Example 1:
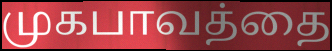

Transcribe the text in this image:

முகபாவத்தை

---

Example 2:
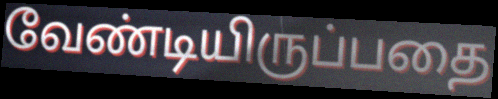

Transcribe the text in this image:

வேண்டியிருப்பதை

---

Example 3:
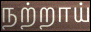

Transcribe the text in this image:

நற்றாய்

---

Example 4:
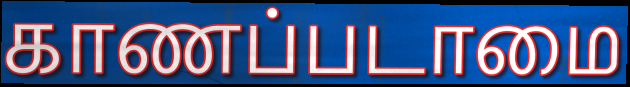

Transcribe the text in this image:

காணப்படாமை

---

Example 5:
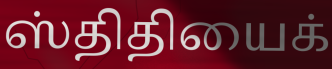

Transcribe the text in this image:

ஸ்திதியைக்